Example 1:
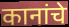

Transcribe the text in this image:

कानांचे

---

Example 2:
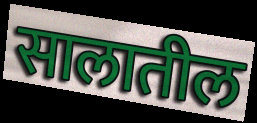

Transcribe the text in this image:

सालातील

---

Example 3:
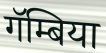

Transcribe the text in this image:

गॅम्बिया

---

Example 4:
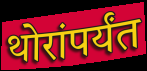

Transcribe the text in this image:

थोरांपर्यंत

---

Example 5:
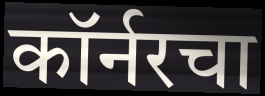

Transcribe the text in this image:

कॉर्नरचा